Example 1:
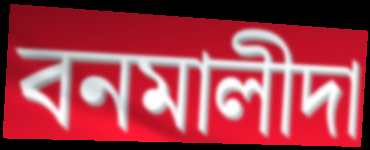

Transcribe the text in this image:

বনমালীদা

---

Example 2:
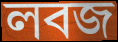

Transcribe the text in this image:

লবজ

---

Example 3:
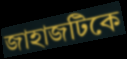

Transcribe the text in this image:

জাহাজটিকে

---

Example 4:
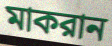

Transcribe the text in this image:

মাকরান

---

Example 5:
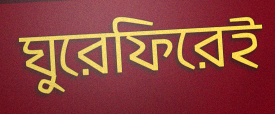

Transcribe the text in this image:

ঘুরেফিরেই